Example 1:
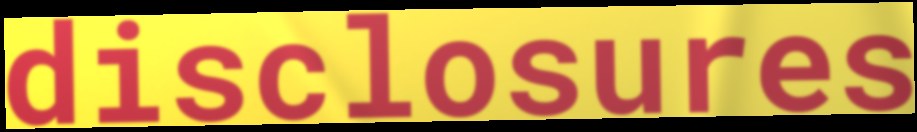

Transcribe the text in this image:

disclosures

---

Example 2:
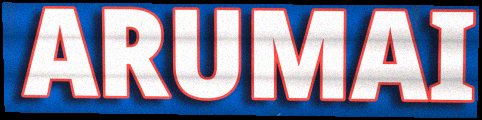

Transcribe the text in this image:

ARUMAI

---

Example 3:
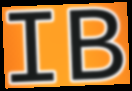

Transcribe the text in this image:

IB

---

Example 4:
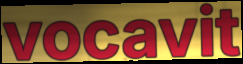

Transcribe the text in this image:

vocavit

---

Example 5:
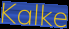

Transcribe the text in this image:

Kalke